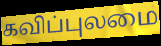
கவிப்புலமை